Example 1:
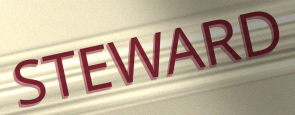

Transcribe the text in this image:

STEWARD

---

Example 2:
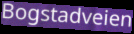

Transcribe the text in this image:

Bogstadveien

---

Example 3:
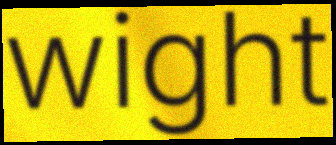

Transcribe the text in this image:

wight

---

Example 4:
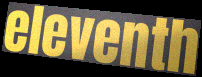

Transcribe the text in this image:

eleventh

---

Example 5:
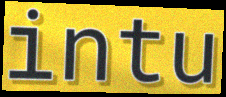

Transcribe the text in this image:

intu